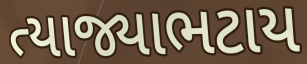
ત્યાજ્યાભટાય